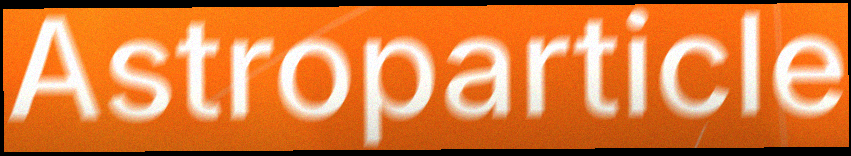
Astroparticle